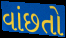
વાંછતો